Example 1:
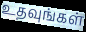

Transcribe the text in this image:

உதவுங்கள்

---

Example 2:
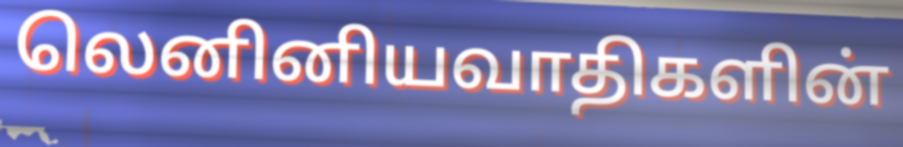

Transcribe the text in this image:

லெனினியவாதிகளின்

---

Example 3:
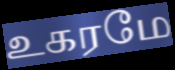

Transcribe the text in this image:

உகரமே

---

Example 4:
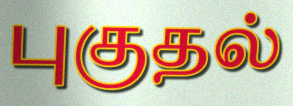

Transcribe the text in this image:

புகுதல்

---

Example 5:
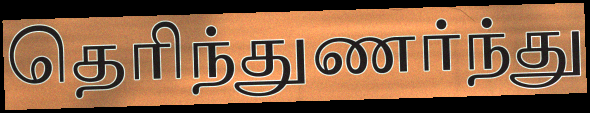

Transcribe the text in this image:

தெரிந்துணர்ந்து